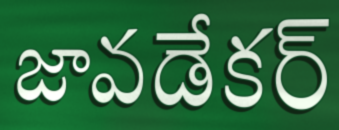
జావడేకర్